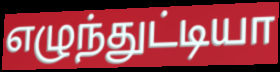
எழுந்துட்டியா